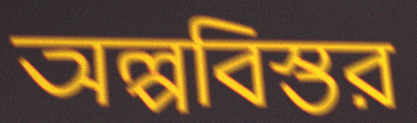
অল্পবিস্তর